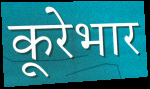
कूरेभार